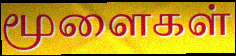
மூளைகள்